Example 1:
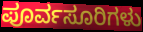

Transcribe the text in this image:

ಪೂರ್ವಸೂರಿಗಳು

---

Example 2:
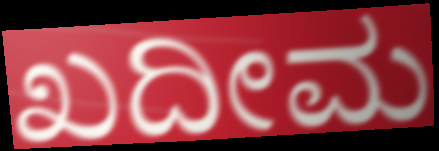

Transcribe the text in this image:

ಖದೀಮ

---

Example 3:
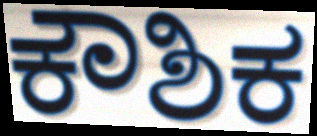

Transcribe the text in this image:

ಕೌಶಿಕ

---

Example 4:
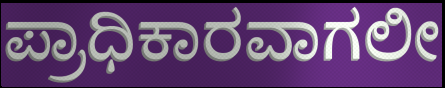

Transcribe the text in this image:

ಪ್ರಾಧಿಕಾರವಾಗಲೀ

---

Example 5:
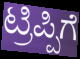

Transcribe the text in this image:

ಟ್ರಿಪ್ಪಿಗೆ